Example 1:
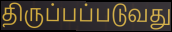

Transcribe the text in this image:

திருப்பப்படுவது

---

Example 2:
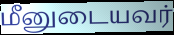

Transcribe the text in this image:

மீனுடையவர்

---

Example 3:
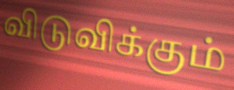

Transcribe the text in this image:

விடுவிக்கும்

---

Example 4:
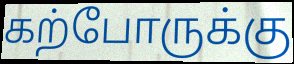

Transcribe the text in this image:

கற்போருக்கு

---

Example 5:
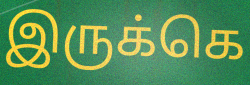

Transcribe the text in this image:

இருக்கெ